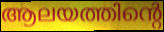
ആലയത്തിന്റെ